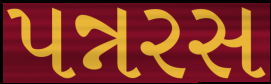
પન્નરસ